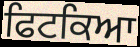
ਫਿਟਕਿਆ